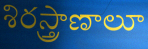
శిరస్త్రాణాలూ